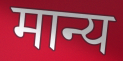
मान्य